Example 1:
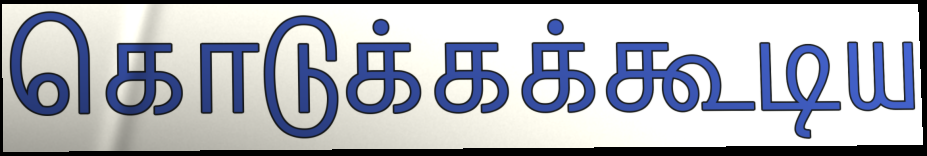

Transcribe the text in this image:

கொடுக்கக்கூடிய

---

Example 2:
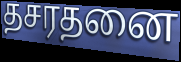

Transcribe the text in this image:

தசரதனை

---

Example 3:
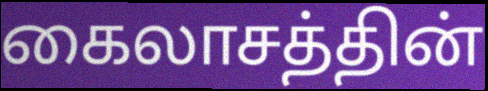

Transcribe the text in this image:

கைலாசத்தின்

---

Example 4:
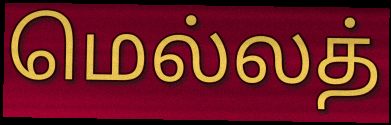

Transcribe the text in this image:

மெல்லத்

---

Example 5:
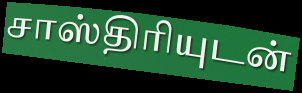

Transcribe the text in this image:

சாஸ்திரியுடன்